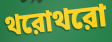
থরোথরো